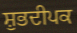
ਸ਼ੁਭਦੀਪਕ